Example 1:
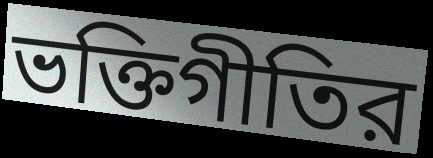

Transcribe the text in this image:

ভক্তিগীতির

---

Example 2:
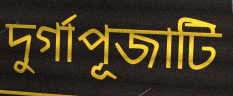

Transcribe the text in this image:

দুর্গাপূজাটি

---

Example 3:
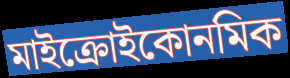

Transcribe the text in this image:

মাইক্রোইকোনমিক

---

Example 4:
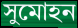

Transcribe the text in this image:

সুমোহন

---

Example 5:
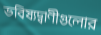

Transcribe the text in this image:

ভবিষ্যদ্বাণীগুলোর